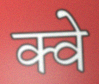
क्वे